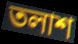
তলাশ